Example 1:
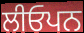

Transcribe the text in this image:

ਲੀਓਪਨ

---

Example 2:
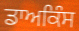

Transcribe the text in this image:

ਡਾਅਕਿੰਸ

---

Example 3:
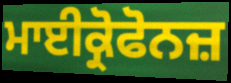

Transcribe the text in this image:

ਮਾਈਕ੍ਰੋਫੋਨਜ਼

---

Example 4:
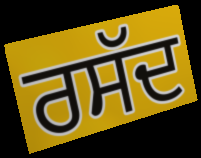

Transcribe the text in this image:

ਰਸੱਦ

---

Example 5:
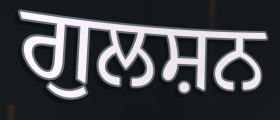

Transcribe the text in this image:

ਗੁਲਸ਼ਨ